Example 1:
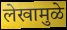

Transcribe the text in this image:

लेखामुळे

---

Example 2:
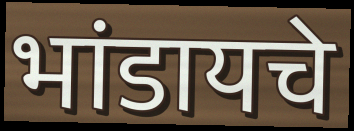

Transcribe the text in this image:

भांडायचे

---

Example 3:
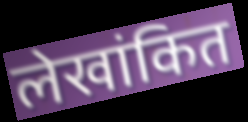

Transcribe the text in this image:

लेखांकित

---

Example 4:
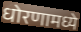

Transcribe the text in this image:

धोरणामध्ये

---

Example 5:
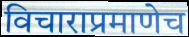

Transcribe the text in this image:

विचाराप्रमाणेच